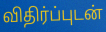
விதிர்ப்புடன்